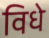
विधे